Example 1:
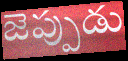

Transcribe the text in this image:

జెప్పుడు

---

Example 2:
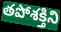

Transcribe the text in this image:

తపోశక్తిని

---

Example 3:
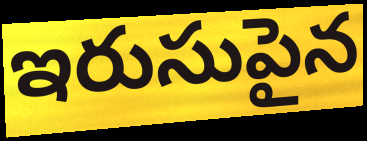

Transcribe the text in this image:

ఇరుసుపైన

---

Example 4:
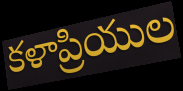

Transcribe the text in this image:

కళాప్రియుల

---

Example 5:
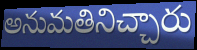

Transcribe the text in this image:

అనుమతినిచ్చారు